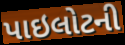
પાઇલોટની